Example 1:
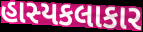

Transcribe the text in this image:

હાસ્યકલાકાર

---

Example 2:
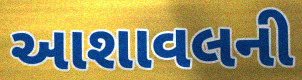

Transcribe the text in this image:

આશાવલની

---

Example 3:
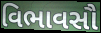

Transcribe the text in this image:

વિભાવસૌ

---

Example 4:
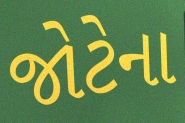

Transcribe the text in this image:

જોટેના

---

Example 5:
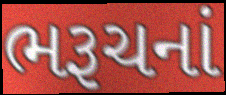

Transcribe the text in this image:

ભરૂચનાં